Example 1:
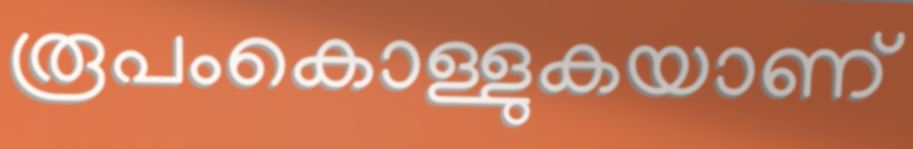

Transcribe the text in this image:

രൂപംകൊള്ളുകയാണ്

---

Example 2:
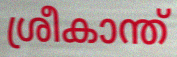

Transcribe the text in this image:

ശ്രീകാന്ത്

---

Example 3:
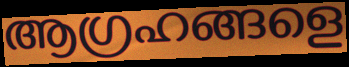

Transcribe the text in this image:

ആഗ്രഹങ്ങളെ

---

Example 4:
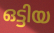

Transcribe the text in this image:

ഒട്ടിയ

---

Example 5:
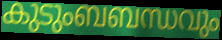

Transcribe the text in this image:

കുടുംബബന്ധവും